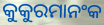
କୁକୁରମାନଂକ